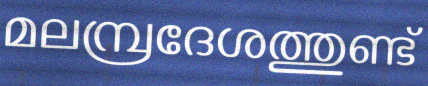
മലമ്പ്രദേശത്തുണ്ട്